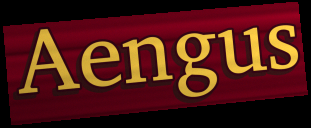
Aengus